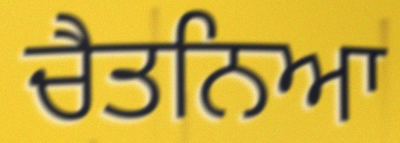
ਚੈਤਨਿਆ